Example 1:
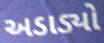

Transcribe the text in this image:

અડાડ્યો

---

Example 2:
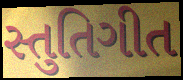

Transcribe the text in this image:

સ્તુતિગીત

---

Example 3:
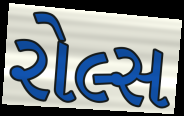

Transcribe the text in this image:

રોલ્સ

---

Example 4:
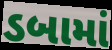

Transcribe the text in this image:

ડબામાં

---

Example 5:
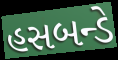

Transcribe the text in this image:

હસબન્ડે